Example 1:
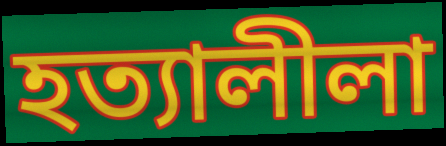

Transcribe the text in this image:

হত্যালীলা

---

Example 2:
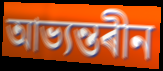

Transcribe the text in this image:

আভ্যন্তৰীন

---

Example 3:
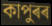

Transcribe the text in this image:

কাপুৰৰ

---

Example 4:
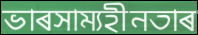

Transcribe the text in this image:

ভাৰসাম্যহীনতাৰ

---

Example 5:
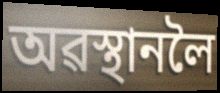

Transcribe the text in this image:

অৱস্থানলৈ